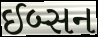
ઈબ્સન